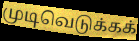
முடிவெடுக்கக்